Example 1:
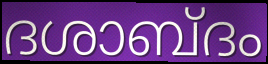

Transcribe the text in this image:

ദശാബ്ദം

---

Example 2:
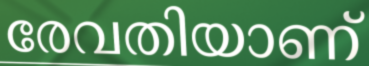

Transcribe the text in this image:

രേവതിയാണ്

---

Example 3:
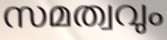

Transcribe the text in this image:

സമത്വവും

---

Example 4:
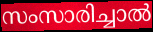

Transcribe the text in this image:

സംസാരിച്ചാൽ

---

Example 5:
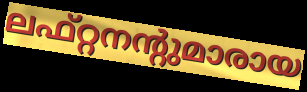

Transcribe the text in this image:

ലഫ്റ്റനന്റുമാരായ